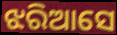
ଝରିଆସେ